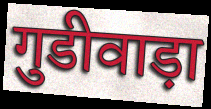
गुडीवाड़ा